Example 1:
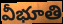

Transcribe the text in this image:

వీభూతి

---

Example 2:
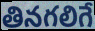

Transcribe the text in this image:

తినగలిగే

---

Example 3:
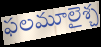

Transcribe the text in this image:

ఫలమూలైశ్చ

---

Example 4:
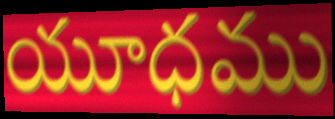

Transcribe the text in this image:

యూధము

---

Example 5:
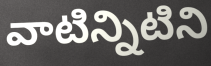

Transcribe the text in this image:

వాటిన్నిటిని